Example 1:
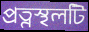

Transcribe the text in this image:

প্রত্নস্থলটি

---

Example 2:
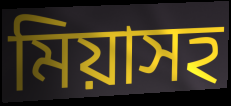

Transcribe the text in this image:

মিয়াসহ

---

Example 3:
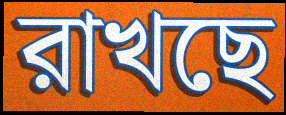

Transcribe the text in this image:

রাখছে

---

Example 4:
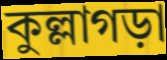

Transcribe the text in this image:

কুল্লাগড়া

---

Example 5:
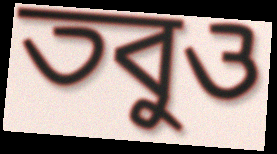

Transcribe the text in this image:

তবুও